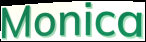
Monica